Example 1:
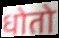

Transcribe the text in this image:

धोतो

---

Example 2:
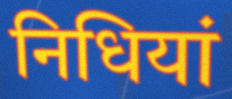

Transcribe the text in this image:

निधियां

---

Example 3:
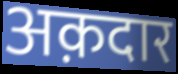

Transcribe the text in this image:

अक़दार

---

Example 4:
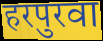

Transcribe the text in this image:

हरपुरवा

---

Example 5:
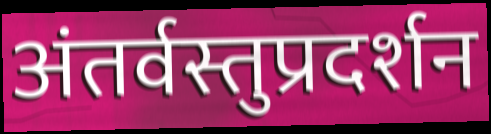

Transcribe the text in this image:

अंतर्वस्तुप्रदर्शन